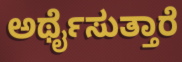
ಅರ್ಥೈಸುತ್ತಾರೆ